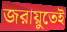
জরায়ুতেই